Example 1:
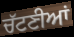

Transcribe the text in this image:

ਚੱਟਣੀਆਂ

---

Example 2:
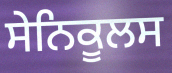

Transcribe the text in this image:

ਸੇਨਿਕੂਲਸ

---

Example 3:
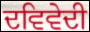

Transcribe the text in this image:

ਦਵਿਵੇਦੀ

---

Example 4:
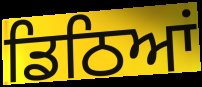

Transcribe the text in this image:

ਡਿਠਿਆਂ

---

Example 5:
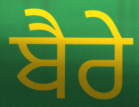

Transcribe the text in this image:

ਬੈਰੇ